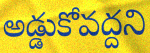
అడ్డుకోవద్దని